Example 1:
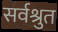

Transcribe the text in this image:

सर्वश्रुत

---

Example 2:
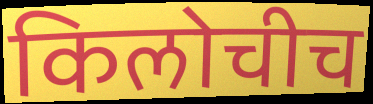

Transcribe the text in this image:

किलोचीच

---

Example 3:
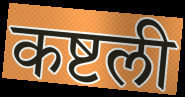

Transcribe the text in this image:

कष्टली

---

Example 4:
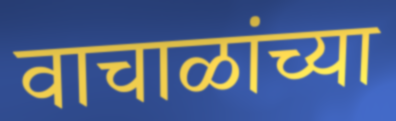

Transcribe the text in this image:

वाचाळांच्या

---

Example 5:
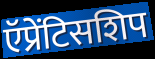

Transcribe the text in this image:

ऍप्रेंटिसशिप